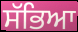
ਸੱਭਿਆ